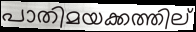
പാതിമയക്കത്തില്